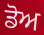
ਡੋਅ